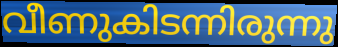
വീണുകിടന്നിരുന്നു